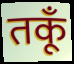
तकूँ